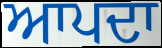
ਆਪਦਾ